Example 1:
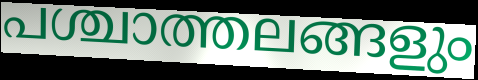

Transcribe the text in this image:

പശ്ചാത്തലങ്ങളും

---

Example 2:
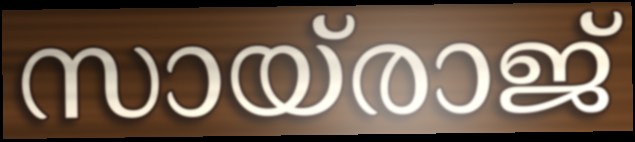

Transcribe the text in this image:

സായ്രാജ്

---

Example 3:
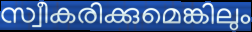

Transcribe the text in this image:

സ്വീകരിക്കുമെങ്കിലും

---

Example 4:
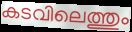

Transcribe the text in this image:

കടവിലെത്തും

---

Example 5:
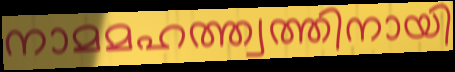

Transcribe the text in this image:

നാമമഹത്ത്വത്തിനായി